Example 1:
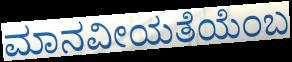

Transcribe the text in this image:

ಮಾನವೀಯತೆಯೆಂಬ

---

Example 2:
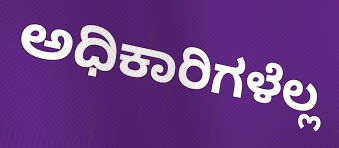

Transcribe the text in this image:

ಅಧಿಕಾರಿಗಳೆಲ್ಲ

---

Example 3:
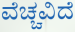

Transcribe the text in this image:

ವೆಚ್ಚವಿದೆ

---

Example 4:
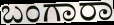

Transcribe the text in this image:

ಬಂಗಾರಾ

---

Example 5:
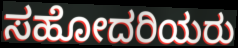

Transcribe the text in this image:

ಸಹೋದರಿಯರು